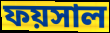
ফয়সাল